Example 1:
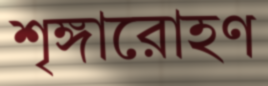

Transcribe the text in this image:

শৃঙ্গারোহণ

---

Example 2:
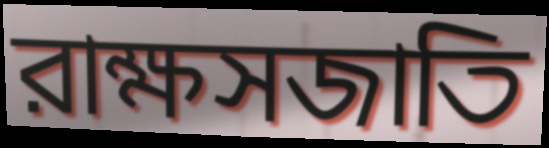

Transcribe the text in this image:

রাক্ষসজাতি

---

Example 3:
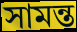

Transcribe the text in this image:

সামন্ত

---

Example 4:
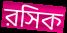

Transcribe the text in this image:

রসিক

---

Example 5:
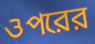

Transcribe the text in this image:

ওপরের